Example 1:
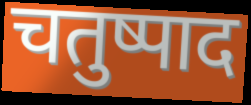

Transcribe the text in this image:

चतुष्पाद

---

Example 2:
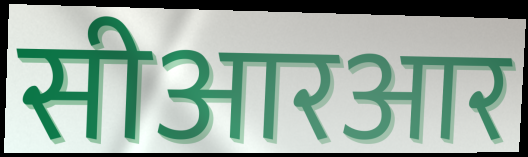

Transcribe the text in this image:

सीआरआर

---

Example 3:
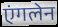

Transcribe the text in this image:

एंगलेन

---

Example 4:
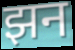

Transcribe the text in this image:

झन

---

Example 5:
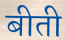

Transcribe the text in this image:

बीती